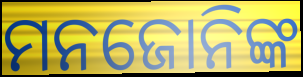
ମନଜୋନିଙ୍କ